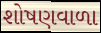
શોષણવાળા